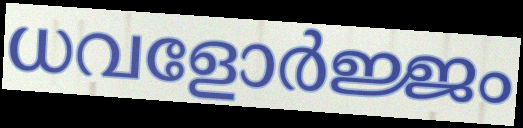
ധവളോർജ്ജം